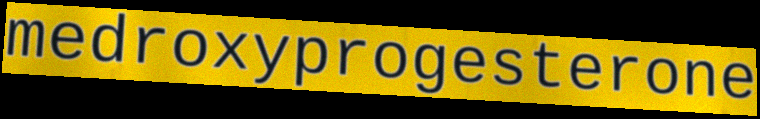
medroxyprogesterone